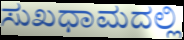
ಸುಖಧಾಮದಲ್ಲಿ